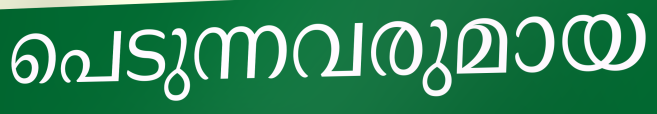
പെടുന്നവരുമായ